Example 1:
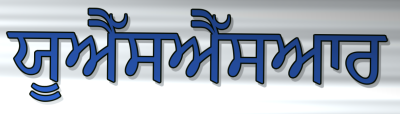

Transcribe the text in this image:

ਯੂਐੱਸਐੱਸਆਰ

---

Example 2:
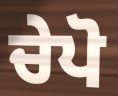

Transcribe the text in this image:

ਚੇਪੋ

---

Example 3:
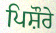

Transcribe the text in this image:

ਪਿਸ਼ੌਰੇ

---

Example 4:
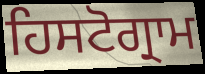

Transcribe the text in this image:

ਹਿਸਟੋਗ੍ਰਾਮ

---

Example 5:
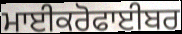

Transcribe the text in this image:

ਮਾਈਕਰੋਫਾਈਬਰ